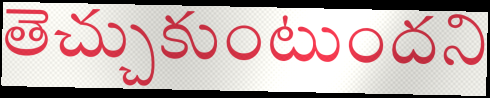
తెచ్చుకుంటుందని